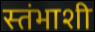
स्तंभाशी